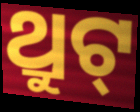
ଥ୍ରୁଟ୍